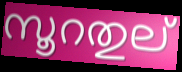
സൂറതുല്